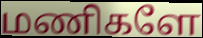
மணிகளே